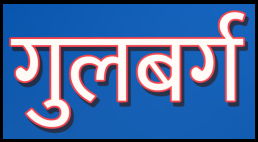
गुलबर्ग